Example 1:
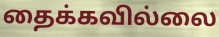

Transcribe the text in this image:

தைக்கவில்லை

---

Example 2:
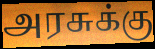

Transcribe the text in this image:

அரசுக்கு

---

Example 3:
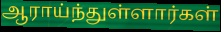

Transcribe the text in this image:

ஆராய்ந்துள்ளார்கள்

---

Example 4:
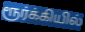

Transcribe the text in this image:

ரூர்க்கியில்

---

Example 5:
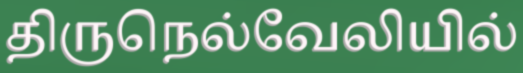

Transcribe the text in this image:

திருநெல்வேலியில்